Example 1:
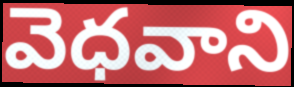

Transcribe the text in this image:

వెధవాని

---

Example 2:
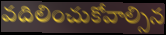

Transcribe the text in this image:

వదిలించుకోవాల్సిన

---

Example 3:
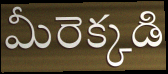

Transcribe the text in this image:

మీరెక్కడి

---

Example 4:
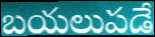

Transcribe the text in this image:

బయలుపడే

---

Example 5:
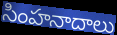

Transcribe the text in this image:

సింహనాదాలు